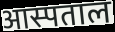
आस्पताल